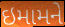
ઇમામને